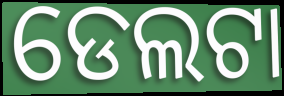
ଡେଲଟା